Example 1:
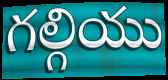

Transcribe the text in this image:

గల్గియు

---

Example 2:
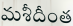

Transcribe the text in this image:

మశీదీంత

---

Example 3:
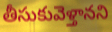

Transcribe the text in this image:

తీసుకువెళ్తానని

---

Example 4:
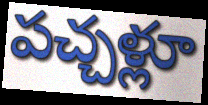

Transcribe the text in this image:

పచ్చళ్లూ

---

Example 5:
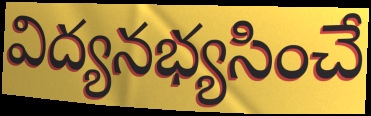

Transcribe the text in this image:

విద్యనభ్యసించే